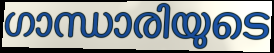
ഗാന്ധാരിയുടെ